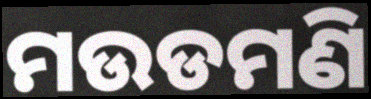
ମଉଡମଣି